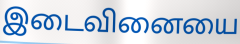
இடைவினையை